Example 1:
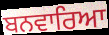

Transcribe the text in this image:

ਬਨਵਾਰਿਆ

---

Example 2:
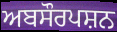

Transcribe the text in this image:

ਅਬਸੌਰਪਸ਼ਨ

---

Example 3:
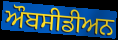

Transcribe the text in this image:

ਔਬਸੀਡੀਅਨ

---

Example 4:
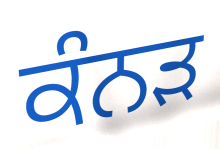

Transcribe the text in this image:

ਕੰਨਡ਼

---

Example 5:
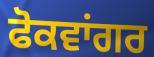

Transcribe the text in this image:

ਫੋਕਵਾਂਗਰ